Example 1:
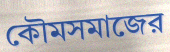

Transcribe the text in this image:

কৌমসমাজের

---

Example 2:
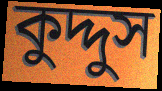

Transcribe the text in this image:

কুদ্দুস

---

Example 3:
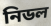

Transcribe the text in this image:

নিডল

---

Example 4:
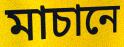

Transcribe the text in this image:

মাচানে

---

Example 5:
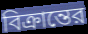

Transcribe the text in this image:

বিক্রান্তের